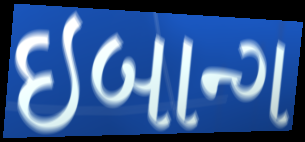
ઇબાન્ગ